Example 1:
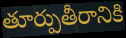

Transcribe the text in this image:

తూర్పుతీరానికి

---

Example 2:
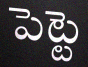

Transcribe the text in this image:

పెట్టె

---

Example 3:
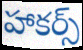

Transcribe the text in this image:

హాకర్స్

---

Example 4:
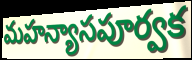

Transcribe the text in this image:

మహన్యాసపూర్వక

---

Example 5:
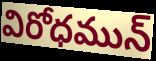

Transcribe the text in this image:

విరోధమున్